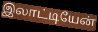
இலாட்டியேன்